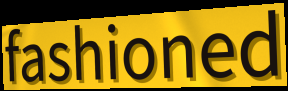
fashioned